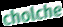
cholche